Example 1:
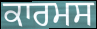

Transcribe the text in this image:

ਕਾਰਮਸ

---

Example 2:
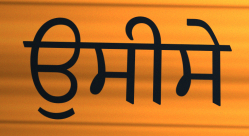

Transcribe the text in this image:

ਉਸੀਸੇ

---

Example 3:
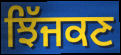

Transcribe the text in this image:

ਝਿੱਜਕਣ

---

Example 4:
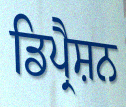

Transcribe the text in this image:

ਡਿਪ੍ਰੈਸ਼ਨ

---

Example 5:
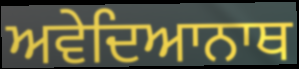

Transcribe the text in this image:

ਅਵੇਦਿਆਨਾਥ